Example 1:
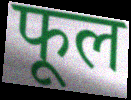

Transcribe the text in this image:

फूल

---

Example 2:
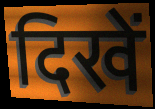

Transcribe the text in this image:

दिखें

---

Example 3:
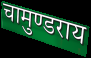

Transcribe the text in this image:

चामुण्डराय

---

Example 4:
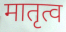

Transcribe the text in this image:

मातृत्व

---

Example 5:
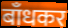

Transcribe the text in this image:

बाँधकर